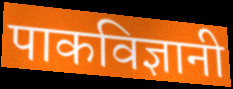
पाकविज्ञानी